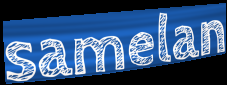
samelan